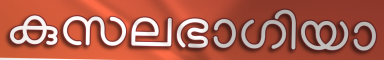
കുസലഭാഗിയാ